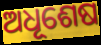
ଅଧୂଶେଷ